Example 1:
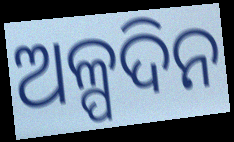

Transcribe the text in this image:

ଅଳ୍ପଦିନ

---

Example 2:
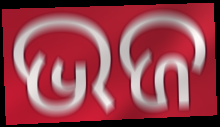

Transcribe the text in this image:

ଭଜ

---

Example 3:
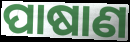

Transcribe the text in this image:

ପାଷାଣ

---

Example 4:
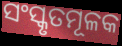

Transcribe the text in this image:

ସଂସ୍କୃତମୂଳକ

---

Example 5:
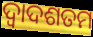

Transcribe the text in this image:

ଦ୍ୱାଦଶତମ